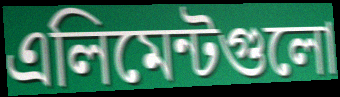
এলিমেন্টগুলো